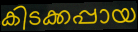
കിടക്കപ്പായ